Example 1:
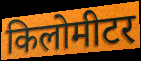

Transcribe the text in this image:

किलोमीटर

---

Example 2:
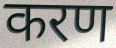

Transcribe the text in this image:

करण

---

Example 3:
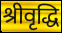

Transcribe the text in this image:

श्रीवृद्धि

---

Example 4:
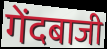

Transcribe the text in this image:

गेंदबाजी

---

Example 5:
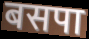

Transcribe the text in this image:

बसपा